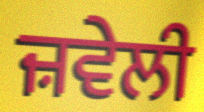
ਜ਼ਵੇਲੀ